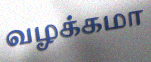
வழக்கமா